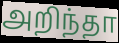
அறிந்தா